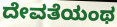
ದೇವತೆಯಂಥ